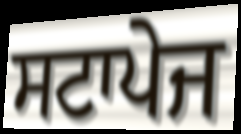
ਸਟਾਪੇਜ